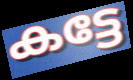
കട്ടേ